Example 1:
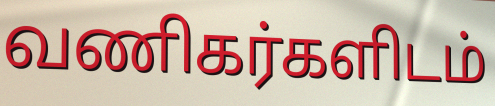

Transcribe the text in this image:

வணிகர்களிடம்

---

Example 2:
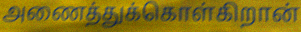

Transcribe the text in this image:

அணைத்துக்கொள்கிறான்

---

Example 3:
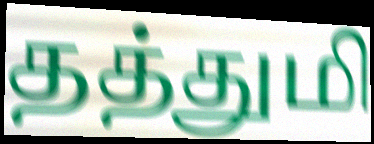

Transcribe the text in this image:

தத்துமி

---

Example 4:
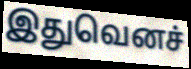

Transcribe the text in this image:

இதுவெனச்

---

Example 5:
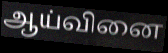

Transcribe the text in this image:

ஆய்வினை